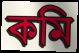
কমি